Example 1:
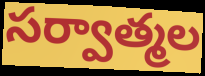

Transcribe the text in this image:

సర్వాత్మల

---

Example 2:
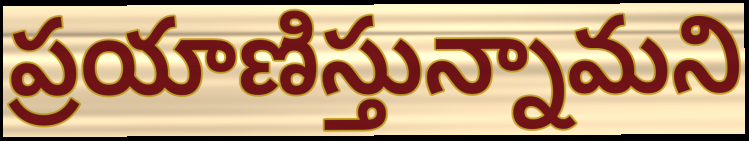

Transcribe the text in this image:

ప్రయాణిస్తున్నామని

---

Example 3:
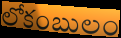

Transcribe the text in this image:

లోకంబులం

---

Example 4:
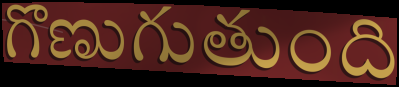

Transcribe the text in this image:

గొణుగుతుంది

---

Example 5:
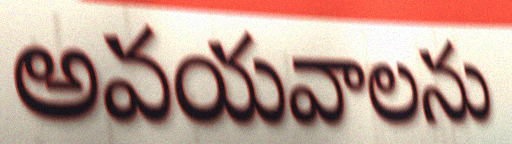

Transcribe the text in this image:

అవయవాలను